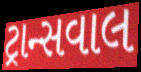
ટ્રાન્સવાલ